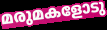
മരുമകളോടു